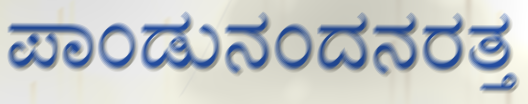
ಪಾಂಡುನಂದನರತ್ತ